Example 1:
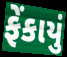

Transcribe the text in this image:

ફેંકાયું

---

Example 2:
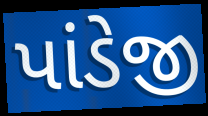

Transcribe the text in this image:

પાંડેજી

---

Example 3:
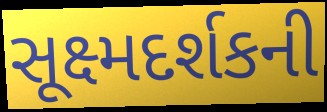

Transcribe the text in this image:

સૂક્ષ્મદર્શકની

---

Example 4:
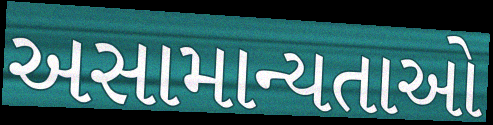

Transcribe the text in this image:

અસામાન્યતાઓ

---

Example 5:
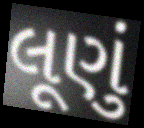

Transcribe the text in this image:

લૂણું